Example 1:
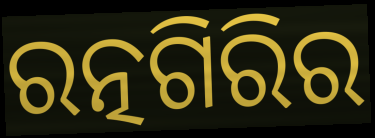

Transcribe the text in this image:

ରତ୍ନଗିରିର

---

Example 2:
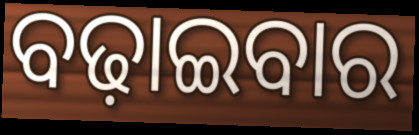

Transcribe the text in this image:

ବଢ଼ାଇବାର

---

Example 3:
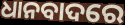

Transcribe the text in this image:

ଧାନବାଦରେ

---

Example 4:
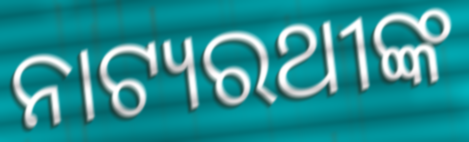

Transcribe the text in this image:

ନାଟ୍ୟରଥୀଙ୍କ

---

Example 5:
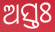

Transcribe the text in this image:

ଅସ୍ତଃ